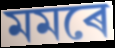
মমৰে